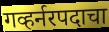
गव्हर्नरपदाचा